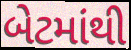
બેટમાંથી